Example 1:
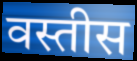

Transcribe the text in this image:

वस्तीस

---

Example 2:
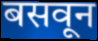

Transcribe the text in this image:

बसवून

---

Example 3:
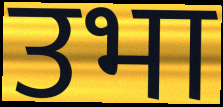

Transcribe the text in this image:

उभा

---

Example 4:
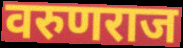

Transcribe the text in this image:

वरुणराज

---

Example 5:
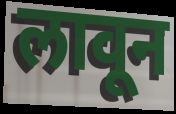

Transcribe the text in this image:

लावून